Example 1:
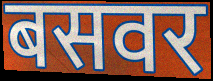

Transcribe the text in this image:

बसवर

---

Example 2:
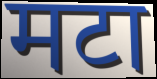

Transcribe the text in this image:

मटा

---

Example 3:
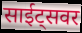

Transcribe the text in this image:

साईट्सवर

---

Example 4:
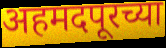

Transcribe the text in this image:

अहमदपूरच्या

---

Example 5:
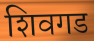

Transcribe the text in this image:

शिवगड